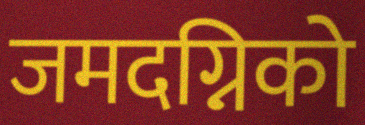
जमदग्निको